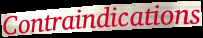
Contraindications